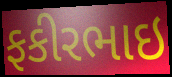
ફકીરભાઇ